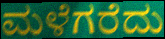
ಮಳೆಗರೆದು